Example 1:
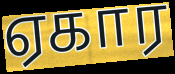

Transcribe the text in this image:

ஏகார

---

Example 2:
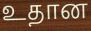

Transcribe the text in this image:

உதான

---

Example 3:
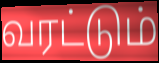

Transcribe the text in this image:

வரட்டும்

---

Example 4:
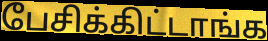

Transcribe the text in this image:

பேசிக்கிட்டாங்க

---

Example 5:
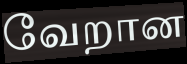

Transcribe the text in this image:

வேறான